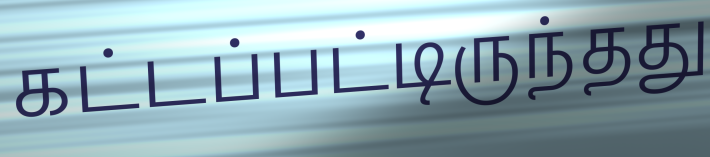
கட்டப்பட்டிருந்தது